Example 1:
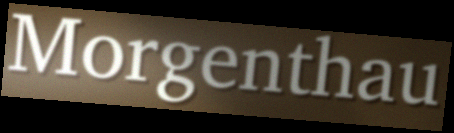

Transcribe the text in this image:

Morgenthau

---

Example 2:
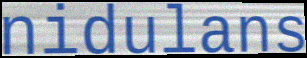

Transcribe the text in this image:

nidulans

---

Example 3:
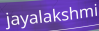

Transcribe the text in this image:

jayalakshmi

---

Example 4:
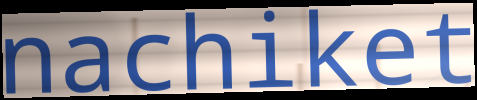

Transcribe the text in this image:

nachiket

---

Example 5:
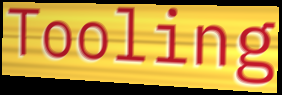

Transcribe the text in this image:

Tooling